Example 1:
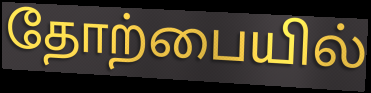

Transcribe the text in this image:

தோற்பையில்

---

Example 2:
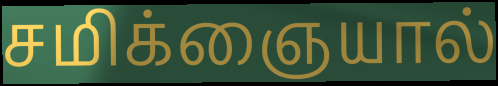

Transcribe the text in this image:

சமிக்ஞையால்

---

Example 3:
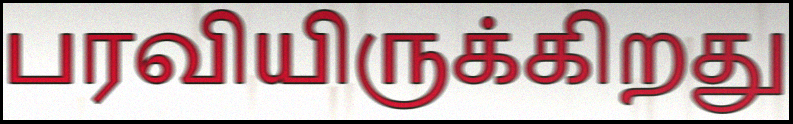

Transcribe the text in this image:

பரவியிருக்கிறது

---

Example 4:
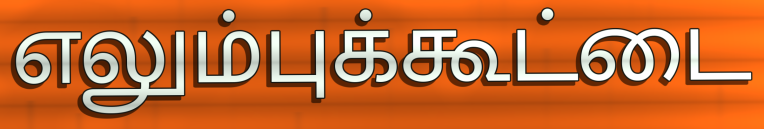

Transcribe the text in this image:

எலும்புக்கூட்டை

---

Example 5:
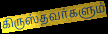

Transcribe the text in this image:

கிருஸ்தவர்களும்